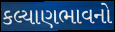
કલ્યાણભાવનો